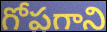
గోపగాని